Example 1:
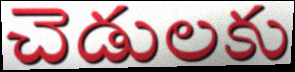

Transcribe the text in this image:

చెడులకు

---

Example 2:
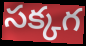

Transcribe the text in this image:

సక్కగ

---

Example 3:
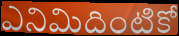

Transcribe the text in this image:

ఎనిమిదింటికో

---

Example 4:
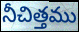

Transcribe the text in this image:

నీచిత్తము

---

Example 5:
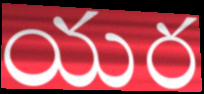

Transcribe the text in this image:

యర